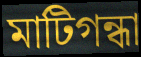
মাটিগন্ধা